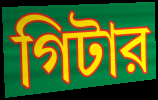
গিটার